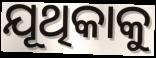
ଯୂଥିକାକୁ